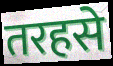
तरहसे